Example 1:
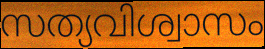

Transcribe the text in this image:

സത്യവിശ്വാസം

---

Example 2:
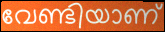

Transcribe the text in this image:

വേണ്ടിയാണ്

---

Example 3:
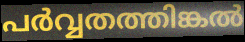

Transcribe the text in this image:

പർവ്വതത്തിങ്കൽ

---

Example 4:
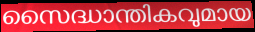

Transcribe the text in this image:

സൈദ്ധാന്തികവുമായ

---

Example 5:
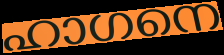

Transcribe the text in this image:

ഹാഗനെ